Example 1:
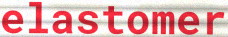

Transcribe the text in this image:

elastomer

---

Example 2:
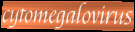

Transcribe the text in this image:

cytomegalovirus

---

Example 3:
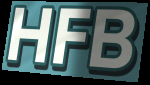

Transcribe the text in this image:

HFB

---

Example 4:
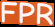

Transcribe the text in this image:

FPR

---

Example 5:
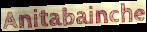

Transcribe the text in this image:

Anitabainche